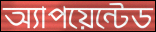
অ্যাপয়েন্টেড